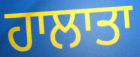
ਹਾਲਾਤਾ